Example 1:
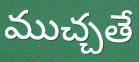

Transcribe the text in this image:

ముచ్చతే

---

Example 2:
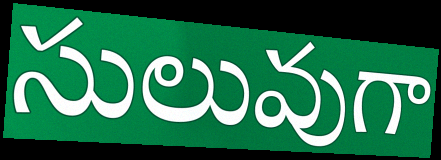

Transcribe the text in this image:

సులువుగా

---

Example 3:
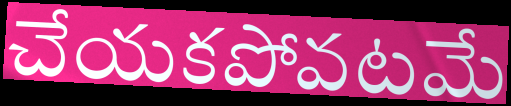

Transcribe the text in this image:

చేయకపోవటమే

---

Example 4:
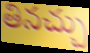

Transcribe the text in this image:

తినచ్చు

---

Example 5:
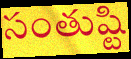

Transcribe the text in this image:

సంతుష్టి